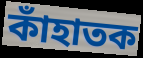
কাঁহাতক